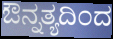
ಔನ್ನತ್ಯದಿಂದ